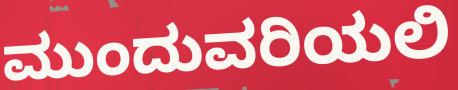
ಮುಂದುವರಿಯಲಿ